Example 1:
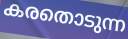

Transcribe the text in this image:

കരതൊടുന്ന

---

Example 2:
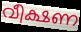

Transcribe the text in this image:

വീക്ഷണ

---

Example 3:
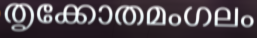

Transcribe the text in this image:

തൃക്കോതമംഗലം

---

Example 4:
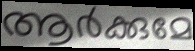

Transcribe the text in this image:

ആർക്കുമേ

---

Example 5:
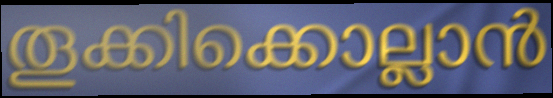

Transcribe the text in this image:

തൂക്കിക്കൊല്ലാൻ